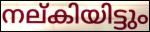
നല്കിയിട്ടും